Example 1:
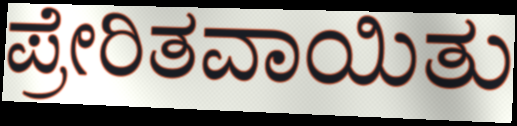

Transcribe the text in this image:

ಪ್ರೇರಿತವಾಯಿತು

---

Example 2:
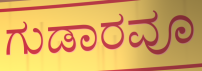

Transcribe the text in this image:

ಗುಡಾರವೂ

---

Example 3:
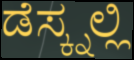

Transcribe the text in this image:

ಡೆಸ್ಕ್ನಲ್ಲಿ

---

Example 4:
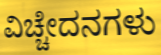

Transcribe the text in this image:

ವಿಚ್ಚೇದನಗಳು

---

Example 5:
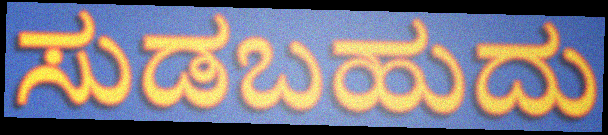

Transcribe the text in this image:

ಸುಡಬಹುದು